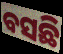
ବସଛି